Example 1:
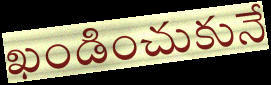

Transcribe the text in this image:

ఖండించుకునే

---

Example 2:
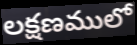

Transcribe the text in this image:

లక్షణములో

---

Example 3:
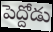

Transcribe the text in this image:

పెద్దోడు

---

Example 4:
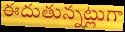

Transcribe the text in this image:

ఈదుతున్నట్లుగా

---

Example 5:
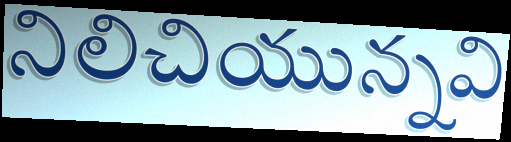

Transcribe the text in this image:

నిలిచియున్నవి